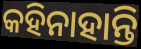
କହିନାହାନ୍ତି